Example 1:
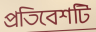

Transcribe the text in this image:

প্রতিবেশটি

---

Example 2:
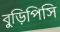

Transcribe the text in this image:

বুড়িপিসি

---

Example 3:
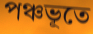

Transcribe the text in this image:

পঞ্চভূতে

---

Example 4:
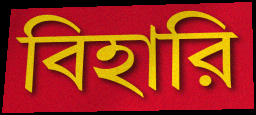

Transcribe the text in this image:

বিহারি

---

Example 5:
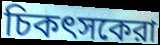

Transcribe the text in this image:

চিকৎসকেরা